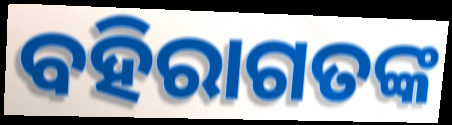
ବହିରାଗତଙ୍କ